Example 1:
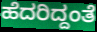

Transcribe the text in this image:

ಹೆದರಿದ್ದಂತೆ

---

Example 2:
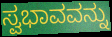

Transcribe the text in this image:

ಸ್ವಭಾವವನ್ನು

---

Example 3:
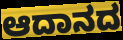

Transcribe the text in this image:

ಆದಾನದ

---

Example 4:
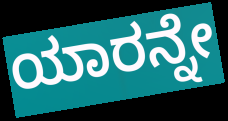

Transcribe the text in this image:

ಯಾರನ್ನೇ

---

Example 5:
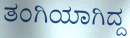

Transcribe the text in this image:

ತಂಗಿಯಾಗಿದ್ದ